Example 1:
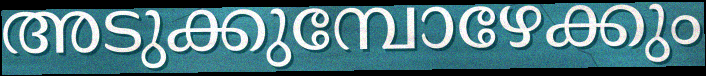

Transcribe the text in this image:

അടുക്കുമ്പോഴേക്കും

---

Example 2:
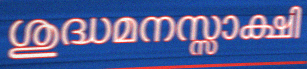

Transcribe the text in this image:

ശുദ്ധമനസ്സാക്ഷി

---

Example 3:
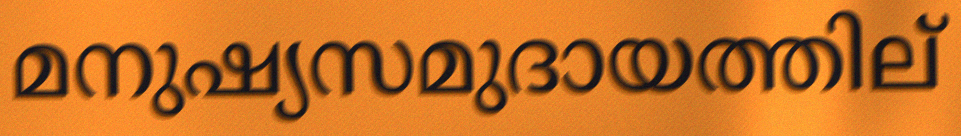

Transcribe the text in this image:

മനുഷ്യസമുദായത്തില്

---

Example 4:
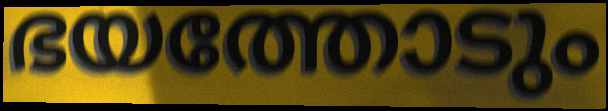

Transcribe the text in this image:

ഭയത്തോടും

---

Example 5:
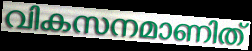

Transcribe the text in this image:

വികസനമാണിത്